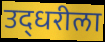
उद्धरीला